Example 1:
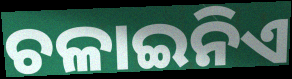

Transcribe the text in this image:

ଚଳାଇନିଏ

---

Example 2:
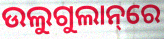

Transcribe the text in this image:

ଉଲୁଗୁଲାନ୍‌ରେ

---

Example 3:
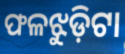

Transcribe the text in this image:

ଫଳଝୁଡ଼ିଟା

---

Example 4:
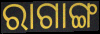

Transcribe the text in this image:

ରାଗାଙ୍ଗ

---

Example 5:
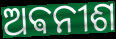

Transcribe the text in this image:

ଅଵନୀଶ